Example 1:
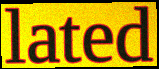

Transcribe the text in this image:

lated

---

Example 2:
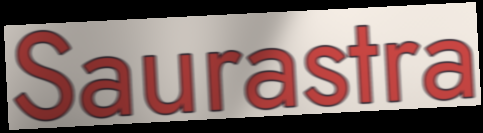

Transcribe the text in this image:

Saurastra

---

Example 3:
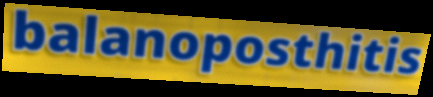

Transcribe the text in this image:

balanoposthitis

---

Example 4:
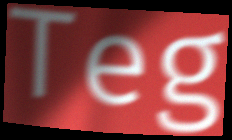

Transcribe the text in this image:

Teg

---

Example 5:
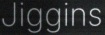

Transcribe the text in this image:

Jiggins